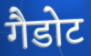
गैडोट